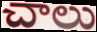
చాలు